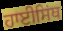
ਹਾਈਸਿਂਥ